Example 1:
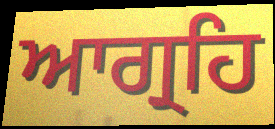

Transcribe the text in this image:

ਆਗ੍ਰਹਿ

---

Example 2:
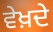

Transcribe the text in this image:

ਵੇਖ਼ਦੇ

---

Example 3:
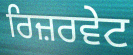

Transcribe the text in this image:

ਰਿਜ਼ਰਵੇਟ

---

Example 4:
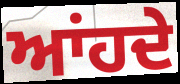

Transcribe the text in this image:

ਆਂਹਦੇ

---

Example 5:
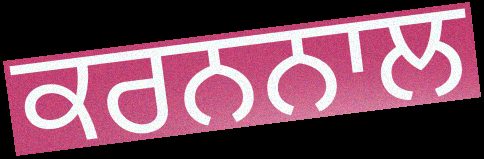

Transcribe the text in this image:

ਕਰਨਨਾਲ